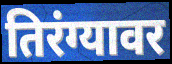
तिरंग्यावर